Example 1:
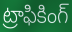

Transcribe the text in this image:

ట్రాఫికింగ్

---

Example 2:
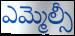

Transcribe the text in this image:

ఎమ్మెల్సీ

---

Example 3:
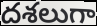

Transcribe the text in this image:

దశలుగా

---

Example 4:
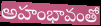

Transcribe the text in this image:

అహంభావంతో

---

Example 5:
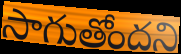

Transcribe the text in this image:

సాగుతోందని